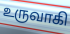
உருவாகி